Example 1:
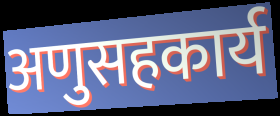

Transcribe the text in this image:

अणुसहकार्य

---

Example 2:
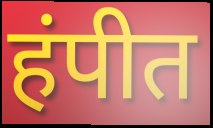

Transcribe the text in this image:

हंपीत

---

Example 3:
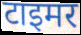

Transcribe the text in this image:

टाइमर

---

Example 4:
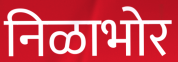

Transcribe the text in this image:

निळाभोर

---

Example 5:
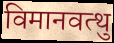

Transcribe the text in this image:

विमानवत्थु